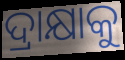
ଦ୍ରାକ୍ଷାକୁ